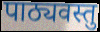
पाठ्यवस्तु